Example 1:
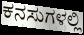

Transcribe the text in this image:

ಕನಸುಗಳಲ್ಲಿ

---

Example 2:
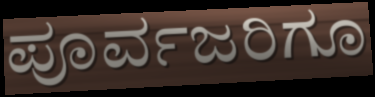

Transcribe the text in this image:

ಪೂರ್ವಜರಿಗೂ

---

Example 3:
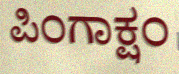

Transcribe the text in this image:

ಪಿಂಗಾಕ್ಷಂ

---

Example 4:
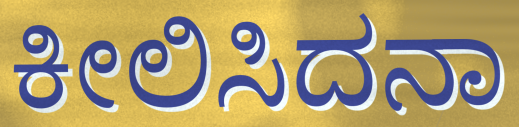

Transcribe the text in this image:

ಕೀಲಿಸಿದನಾ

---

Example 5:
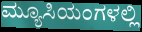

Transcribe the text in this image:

ಮ್ಯೂಸಿಯಂಗಳಲ್ಲಿ